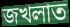
জখলাত